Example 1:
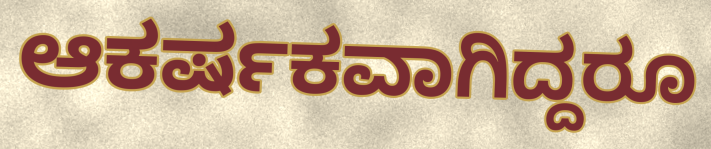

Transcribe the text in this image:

ಆಕರ್ಷಕವಾಗಿದ್ದರೂ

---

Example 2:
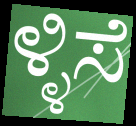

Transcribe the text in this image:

ಳ್ಳಿಸೆ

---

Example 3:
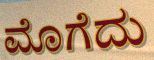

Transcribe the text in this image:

ಮೊಗೆದು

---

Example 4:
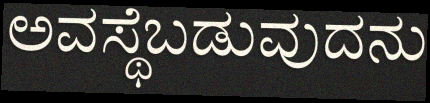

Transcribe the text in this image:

ಅವಸ್ಥೆಬಡುವುದನು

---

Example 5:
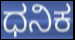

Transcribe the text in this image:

ಧನಿಕ